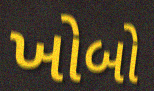
ખોબો